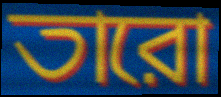
তারো